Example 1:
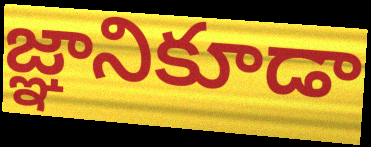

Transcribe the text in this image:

జ్ఞానికూడా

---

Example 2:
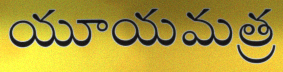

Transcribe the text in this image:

యూయమత్ర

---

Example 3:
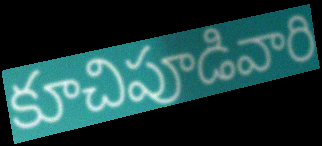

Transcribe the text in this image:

కూచిపూడివారి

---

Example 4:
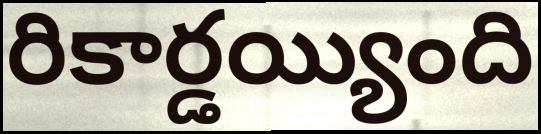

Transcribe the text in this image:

రికార్డయ్యింది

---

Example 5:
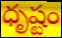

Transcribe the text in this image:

ధృష్టం